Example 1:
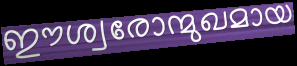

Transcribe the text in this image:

ഈശ്വരോന്മുഖമായ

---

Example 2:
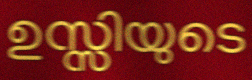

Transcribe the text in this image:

ഉസ്സിയുടെ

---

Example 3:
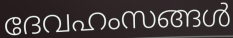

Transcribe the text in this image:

ദേവഹംസങ്ങൾ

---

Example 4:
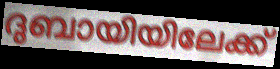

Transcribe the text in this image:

ദുബായിയിലേക്ക്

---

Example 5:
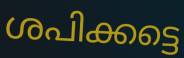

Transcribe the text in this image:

ശപിക്കട്ടെ